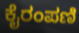
ಕೈರಂಪಣಿ